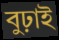
বুঢ়াই